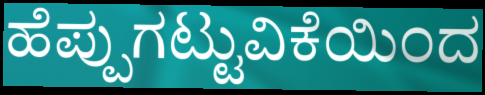
ಹೆಪ್ಪುಗಟ್ಟುವಿಕೆಯಿಂದ